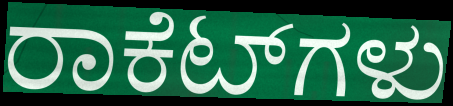
ರಾಕೆಟ್‌ಗಳು